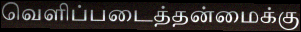
வெளிப்படைத்தன்மைக்கு